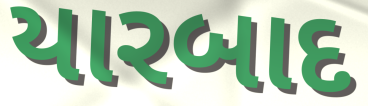
યારબાદ